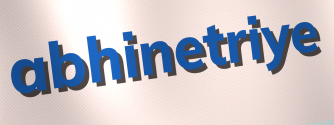
abhinetriye